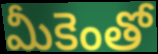
మీకెంతో